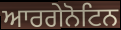
ਆਰਗੇਨੋਟਿਨ